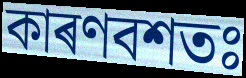
কাৰণবশতঃ